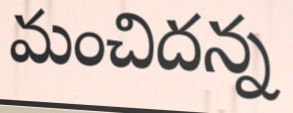
మంచిదన్న